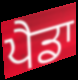
ਪੈਡਾ